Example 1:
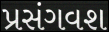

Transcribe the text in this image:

પ્રસંગવશ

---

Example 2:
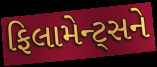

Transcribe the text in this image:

ફિલામેન્ટ્સને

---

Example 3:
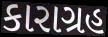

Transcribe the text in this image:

કારાગ્રહ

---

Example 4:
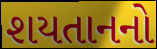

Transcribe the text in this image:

શયતાનનો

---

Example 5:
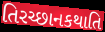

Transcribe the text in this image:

તિરચ્છાનકથાતિ